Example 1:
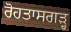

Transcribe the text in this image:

ਰੋਹਤਾਸਗੜ੍ਹ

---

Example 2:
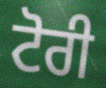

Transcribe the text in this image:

ਟੋਰੀ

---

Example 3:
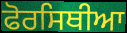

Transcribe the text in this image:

ਫੋਰਸਿਥੀਆ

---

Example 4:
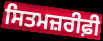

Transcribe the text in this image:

ਸਿਤਮਜ਼ਰੀਫ਼ੀ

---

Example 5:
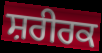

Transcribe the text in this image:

ਸ਼ਰੀਰਕ